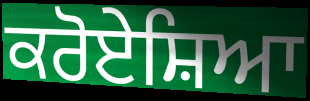
ਕਰੋਏਸ਼ਿਆ